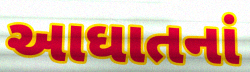
આઘાતનાં